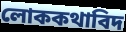
লোককথাবিদ